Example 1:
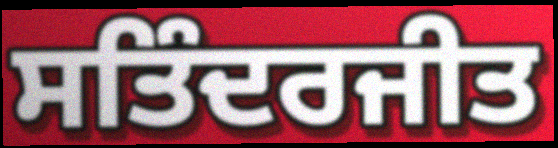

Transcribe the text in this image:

ਸਤਿੰਦਰਜੀਤ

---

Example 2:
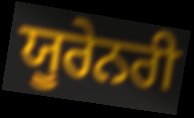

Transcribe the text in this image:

ਯੂਰੇਨਰੀ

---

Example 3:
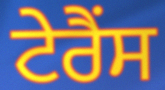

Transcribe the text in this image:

ਟੇਰੈਂਸ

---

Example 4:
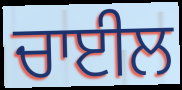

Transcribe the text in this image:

ਚਾਈਲ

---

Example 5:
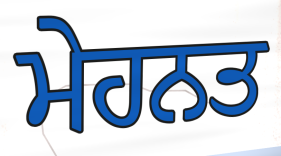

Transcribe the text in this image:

ਮੇਹਨਤ